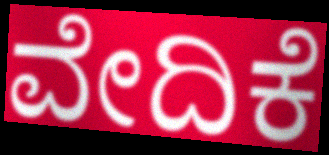
ವೇದಿಕೆ